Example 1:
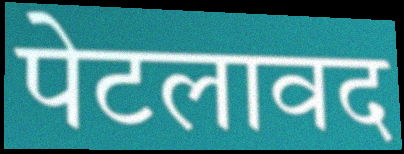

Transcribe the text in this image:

पेटलावद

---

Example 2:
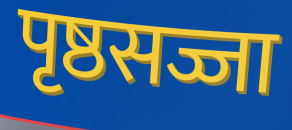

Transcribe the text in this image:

पृष्ठसज्जा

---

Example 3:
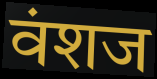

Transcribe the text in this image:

वंशज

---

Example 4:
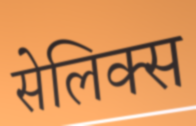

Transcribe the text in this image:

सेलिक्स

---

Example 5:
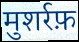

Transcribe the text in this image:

मुशर्रफ़